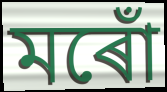
মৰোঁ